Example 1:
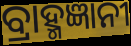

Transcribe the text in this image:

ବ୍ରାହ୍ମଜ୍ଞାନୀ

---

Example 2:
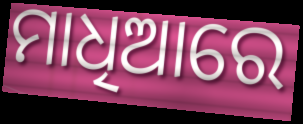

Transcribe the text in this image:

ମାଧିଆରେ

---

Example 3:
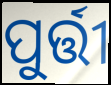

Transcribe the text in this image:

ପୁର୍ତ୍ତୀ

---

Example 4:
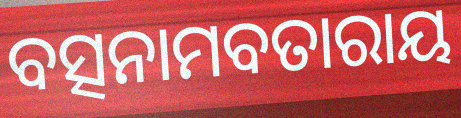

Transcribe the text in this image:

ବତ୍ସନାମବତାରାୟ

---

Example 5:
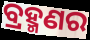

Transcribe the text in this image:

ବ୍ରହ୍ମଣର